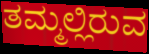
ತಮ್ಮಲ್ಲಿರುವ